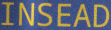
INSEAD